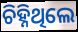
ଚିହ୍ନିଥିଲେ